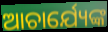
ଆଚାର୍ଯ୍ୟେଙ୍କ